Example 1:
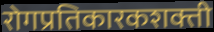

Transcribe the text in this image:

रोगप्रतिकारकशक्ती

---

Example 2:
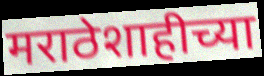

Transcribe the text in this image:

मराठेशाहीच्या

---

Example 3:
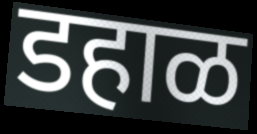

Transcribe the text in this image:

डहाळ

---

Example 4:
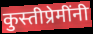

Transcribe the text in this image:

कुस्तीप्रेमींनी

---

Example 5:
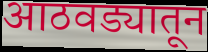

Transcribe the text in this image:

आठवड्यातून